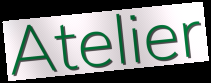
Atelier